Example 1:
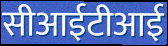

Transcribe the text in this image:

सीआईटीआई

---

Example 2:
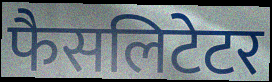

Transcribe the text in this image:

फैसलिटेटर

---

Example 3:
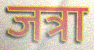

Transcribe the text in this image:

जत्रा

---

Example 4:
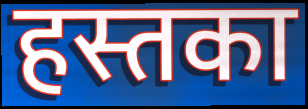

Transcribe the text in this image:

हस्तका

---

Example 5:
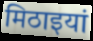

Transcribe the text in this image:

मिठाइयां